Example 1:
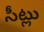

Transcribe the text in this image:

సీట్లు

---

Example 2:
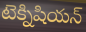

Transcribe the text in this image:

టెక్నిషియన్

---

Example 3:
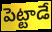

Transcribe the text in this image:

పెట్టాడే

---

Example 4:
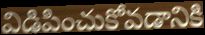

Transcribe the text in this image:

విడిపించుకోవడానికి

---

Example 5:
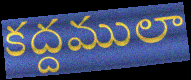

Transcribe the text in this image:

కద్దములా